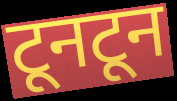
टूनटून